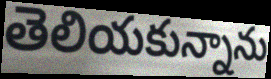
తెలియకున్నాను